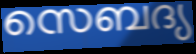
സെബദ്യ